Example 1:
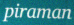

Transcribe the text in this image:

piraman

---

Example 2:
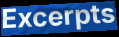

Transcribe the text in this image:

Excerpts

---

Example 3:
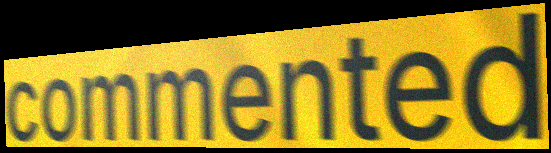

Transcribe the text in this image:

commented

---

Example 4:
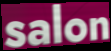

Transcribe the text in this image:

salon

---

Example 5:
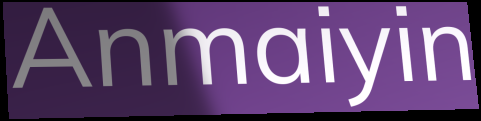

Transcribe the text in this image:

Anmaiyin